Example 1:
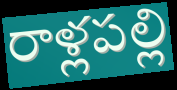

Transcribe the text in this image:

రాళ్లపల్లి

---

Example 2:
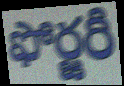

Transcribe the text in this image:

ఫోర్జరీ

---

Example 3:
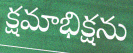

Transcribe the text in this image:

క్షమాభిక్షను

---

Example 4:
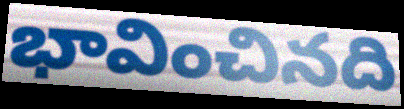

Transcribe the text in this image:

భావించినది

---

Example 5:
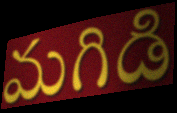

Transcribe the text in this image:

మగిడి